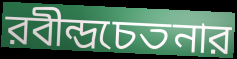
রবীন্দ্রচেতনার